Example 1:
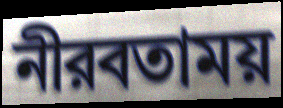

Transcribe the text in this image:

নীরবতাময়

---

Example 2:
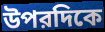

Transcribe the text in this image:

উপরদিকে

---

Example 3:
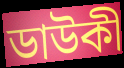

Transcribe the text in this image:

ডাউকী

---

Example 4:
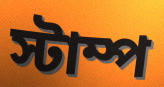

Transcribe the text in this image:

স্টাম্প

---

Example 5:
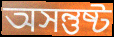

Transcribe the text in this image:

অসন্তুষ্ট